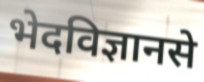
भेदविज्ञानसे